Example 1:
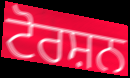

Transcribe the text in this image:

ਟੋਰਸ਼ਨ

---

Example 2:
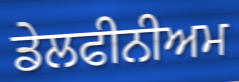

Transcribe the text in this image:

ਡੇਲਫੀਨੀਅਮ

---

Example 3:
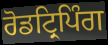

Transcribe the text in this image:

ਰੋਡਟ੍ਰਿਪਿੰਗ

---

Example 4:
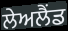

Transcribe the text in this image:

ਲੇਅਲੈਂਡ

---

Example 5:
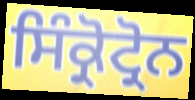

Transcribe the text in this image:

ਸਿੰਕ੍ਰੋਟ੍ਰੋਨ